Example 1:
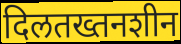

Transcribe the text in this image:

दिलतख्तनशीन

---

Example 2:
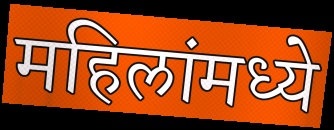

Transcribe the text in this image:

महिलांमध्ये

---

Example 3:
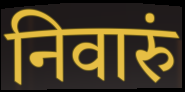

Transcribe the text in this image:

निवारुं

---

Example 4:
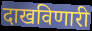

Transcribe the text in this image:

दाखविणारी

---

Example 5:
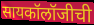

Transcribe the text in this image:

सायकॉलॉजीची